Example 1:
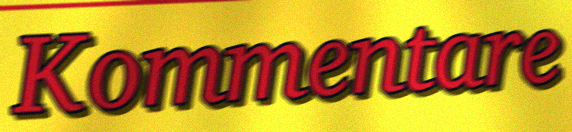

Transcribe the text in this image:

Kommentare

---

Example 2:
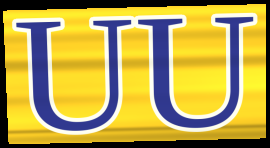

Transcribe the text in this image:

UU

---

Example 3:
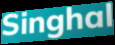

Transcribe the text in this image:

Singhal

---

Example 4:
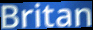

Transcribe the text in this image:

Britan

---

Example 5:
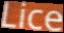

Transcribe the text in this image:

Lice